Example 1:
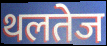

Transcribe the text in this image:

थलतेज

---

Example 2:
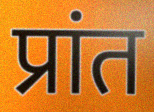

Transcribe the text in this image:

प्रांत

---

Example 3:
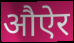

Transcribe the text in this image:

औऐर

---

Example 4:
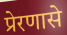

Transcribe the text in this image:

प्रेरणासे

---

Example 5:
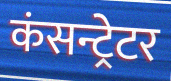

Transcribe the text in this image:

कंसन्ट्रेटर